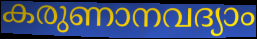
കരുണാനവദ്യാം